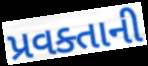
પ્રવક્તાની